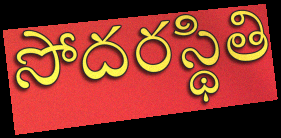
సోదరస్థితి